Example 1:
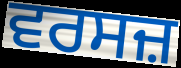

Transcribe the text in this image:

ਵਰਸਜ਼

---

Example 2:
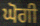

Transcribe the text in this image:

ਘੋਗੀ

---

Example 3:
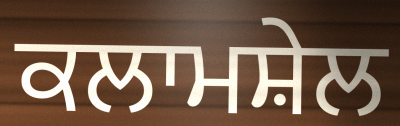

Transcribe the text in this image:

ਕਲਾਮਸ਼ੇਲ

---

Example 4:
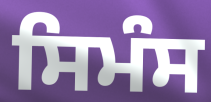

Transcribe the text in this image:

ਸਿਮੰਸ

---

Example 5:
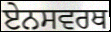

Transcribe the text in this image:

ਏਨਸਵਰਥ